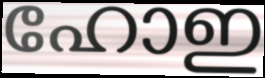
ഹോഇ